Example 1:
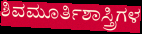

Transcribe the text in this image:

ಶಿವಮೂರ್ತಿಶಾಸ್ತ್ರಿಗಳ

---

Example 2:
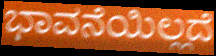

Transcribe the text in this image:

ಭಾವನೆಯಿಲ್ಲದೆ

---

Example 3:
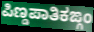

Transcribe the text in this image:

ಪಿಣ್ಡಪಾತಿಕಙ್ಗಂ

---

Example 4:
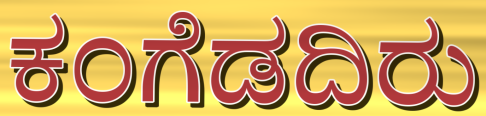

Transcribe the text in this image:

ಕಂಗೆಡದಿರು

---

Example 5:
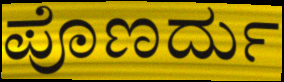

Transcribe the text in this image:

ಪೊಣರ್ದು